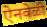
ऐनवेळी